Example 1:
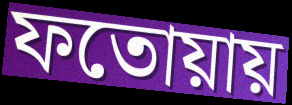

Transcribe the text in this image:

ফতোয়ায়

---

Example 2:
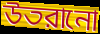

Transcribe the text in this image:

উতরানো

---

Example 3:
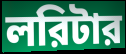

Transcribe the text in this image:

লরিটার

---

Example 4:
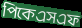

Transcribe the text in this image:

পিকেএসএফ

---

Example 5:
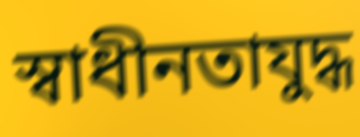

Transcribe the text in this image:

স্বাধীনতাযুদ্ধ